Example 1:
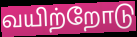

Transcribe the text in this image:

வயிற்றோடு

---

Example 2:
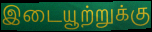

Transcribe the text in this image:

இடையூற்றுக்கு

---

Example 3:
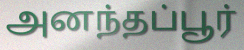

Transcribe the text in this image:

அனந்தப்பூர்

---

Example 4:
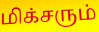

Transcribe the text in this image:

மிக்சரும்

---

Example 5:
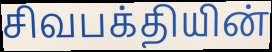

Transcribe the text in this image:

சிவபக்தியின்